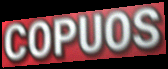
COPUOS